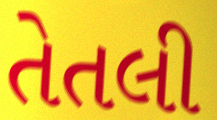
તેતલી